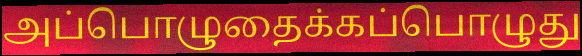
அப்பொழுதைக்கப்பொழுது